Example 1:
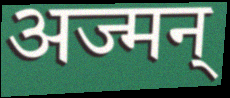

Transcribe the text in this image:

अज्मन्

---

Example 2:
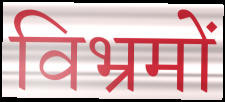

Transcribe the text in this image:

विभ्रमों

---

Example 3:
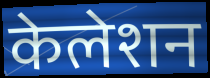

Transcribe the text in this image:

केलेशन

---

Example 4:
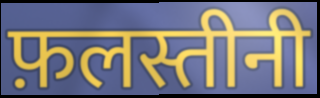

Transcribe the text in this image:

फ़लस्तीनी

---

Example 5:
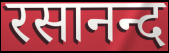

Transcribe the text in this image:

रसानन्द